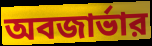
অবজার্ভার